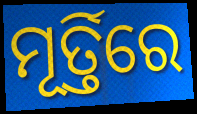
ମୂର୍ତ୍ତିରେ